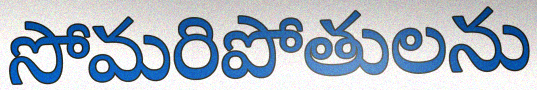
సోమరిపోతులను